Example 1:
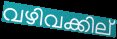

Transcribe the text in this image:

വഴിവക്കില്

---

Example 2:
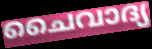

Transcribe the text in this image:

ചൈവാദ്യ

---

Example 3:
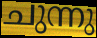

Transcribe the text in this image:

ചുന്നു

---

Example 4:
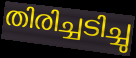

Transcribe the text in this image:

തിരിച്ചടിച്ചു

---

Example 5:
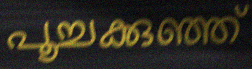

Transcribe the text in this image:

പൂച്ചക്കുഞ്ഞ്